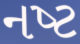
નષ્‍ટ